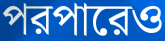
পরপারেও